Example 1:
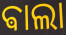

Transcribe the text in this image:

ଵାଲା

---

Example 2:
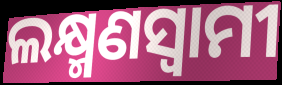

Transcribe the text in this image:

ଲକ୍ଷ୍ମଣସ୍ଵାମୀ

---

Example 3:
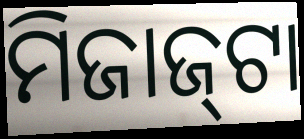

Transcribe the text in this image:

ମିଜାଜ୍‌ଟା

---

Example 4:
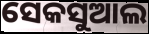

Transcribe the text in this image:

ସେକସୁଆଲ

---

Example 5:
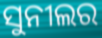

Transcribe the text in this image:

ସୁନୀଲର